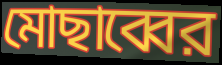
মোছাব্বের